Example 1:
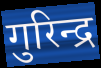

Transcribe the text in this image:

गुरिन्द्र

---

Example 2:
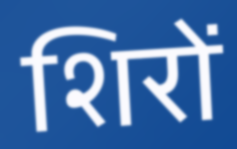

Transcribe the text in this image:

शिरों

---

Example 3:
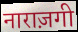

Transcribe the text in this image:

नाराज़गी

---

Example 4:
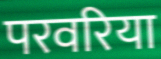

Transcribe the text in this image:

परवरिया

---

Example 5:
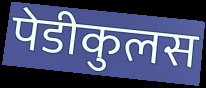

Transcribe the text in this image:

पेडीकुलस